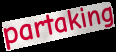
partaking